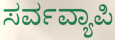
ಸರ್ವವ್ಯಾಪಿ